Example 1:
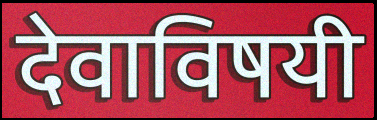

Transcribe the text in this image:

देवाविषयी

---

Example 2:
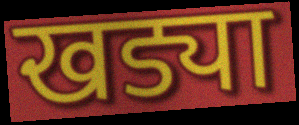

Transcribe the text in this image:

खड्या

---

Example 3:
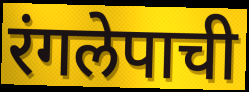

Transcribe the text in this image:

रंगलेपाची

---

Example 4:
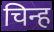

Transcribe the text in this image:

चिन्ह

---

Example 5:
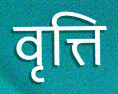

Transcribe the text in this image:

वृत्ति